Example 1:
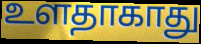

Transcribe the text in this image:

உளதாகாது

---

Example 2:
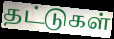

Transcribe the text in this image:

தட்டுகள்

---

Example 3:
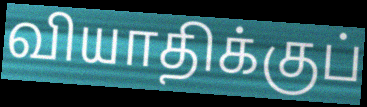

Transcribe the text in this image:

வியாதிக்குப்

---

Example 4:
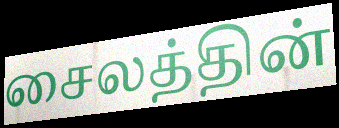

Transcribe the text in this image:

சைலத்தின்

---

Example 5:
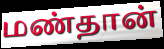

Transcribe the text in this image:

மண்தான்